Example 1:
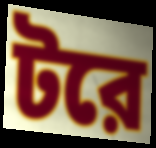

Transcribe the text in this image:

টরে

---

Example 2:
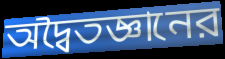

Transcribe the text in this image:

অদ্বৈতজ্ঞানের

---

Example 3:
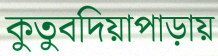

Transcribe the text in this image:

কুতুবদিয়াপাড়ায়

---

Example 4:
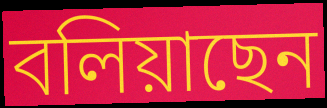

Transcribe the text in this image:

বলিয়াছেন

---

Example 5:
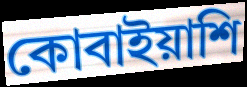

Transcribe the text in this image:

কোবাইয়াশি